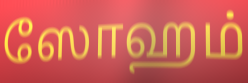
ஸோஹம்